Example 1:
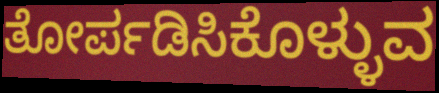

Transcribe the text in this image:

ತೋರ್ಪಡಿಸಿಕೊಳ್ಳುವ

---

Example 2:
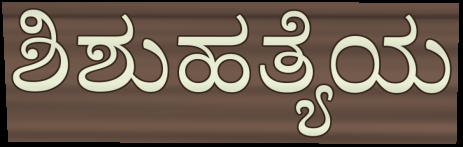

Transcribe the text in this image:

ಶಿಶುಹತ್ಯೆಯ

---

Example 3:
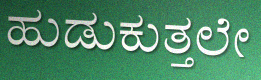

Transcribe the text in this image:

ಹುಡುಕುತ್ತಲೇ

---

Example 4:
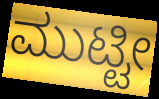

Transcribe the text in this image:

ಮುಟ್ಟೀ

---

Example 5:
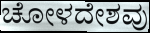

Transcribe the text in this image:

ಚೋಳದೇಶವು